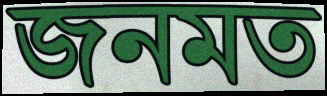
জনমত